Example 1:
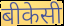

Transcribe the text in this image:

बीकेसी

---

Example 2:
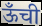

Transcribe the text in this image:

ऊँची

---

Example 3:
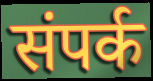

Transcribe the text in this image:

संपर्क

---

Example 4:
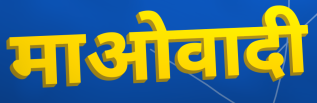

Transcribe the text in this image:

माओवादी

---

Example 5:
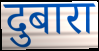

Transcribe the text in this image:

दुबारा